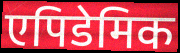
एपिडेमिक